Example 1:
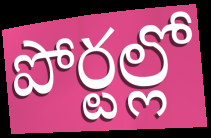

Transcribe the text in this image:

పోర్టల్లో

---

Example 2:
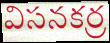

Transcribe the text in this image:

విసనకర్ర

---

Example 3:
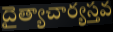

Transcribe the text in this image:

దైత్యాచార్యస్తవ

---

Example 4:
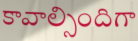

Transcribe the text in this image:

కావాల్సిందిగా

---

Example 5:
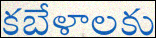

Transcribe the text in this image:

కబేళాలకు